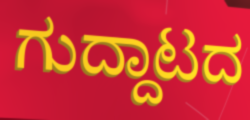
ಗುದ್ದಾಟದ